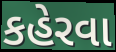
કહેરવા